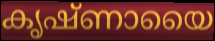
കൃഷ്ണായൈ